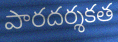
పారదర్శకత